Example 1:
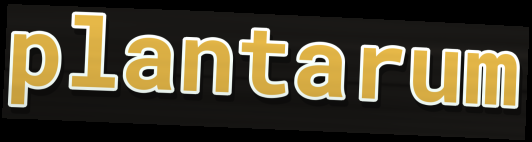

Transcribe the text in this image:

plantarum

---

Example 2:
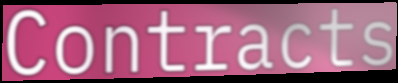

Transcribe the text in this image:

Contracts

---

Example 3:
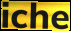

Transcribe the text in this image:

iche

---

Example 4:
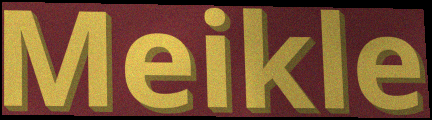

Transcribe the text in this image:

Meikle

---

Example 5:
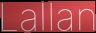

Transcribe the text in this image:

Lallan